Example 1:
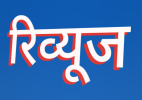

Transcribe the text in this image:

रिव्यूज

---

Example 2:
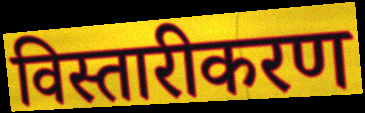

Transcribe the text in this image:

विस्तारीकरण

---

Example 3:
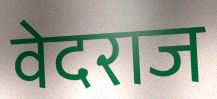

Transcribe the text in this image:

वेदराज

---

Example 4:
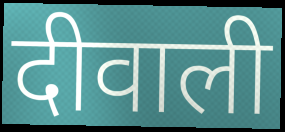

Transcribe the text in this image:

दीवाली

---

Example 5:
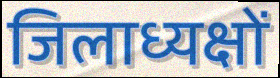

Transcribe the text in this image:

जिलाध्यक्षों